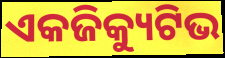
ଏକଜିକ୍ୟୁଟିଭ